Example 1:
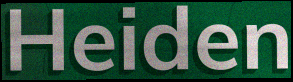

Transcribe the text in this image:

Heiden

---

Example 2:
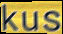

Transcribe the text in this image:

kus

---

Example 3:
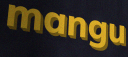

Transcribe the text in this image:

mangu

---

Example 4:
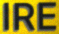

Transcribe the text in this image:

IRE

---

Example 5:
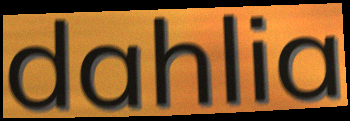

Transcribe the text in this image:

dahlia